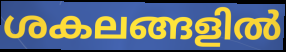
ശകലങ്ങളിൽ